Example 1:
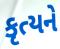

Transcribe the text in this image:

કૃત્યને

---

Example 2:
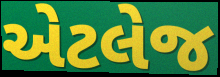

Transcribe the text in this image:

એટલેજ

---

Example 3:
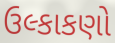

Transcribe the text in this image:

ઉલ્કાકણો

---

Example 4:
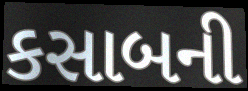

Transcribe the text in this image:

કસાબની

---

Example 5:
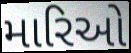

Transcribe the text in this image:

મારિઓ